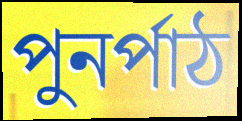
পুনর্পাঠ